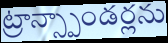
ట్రాన్స్పాండర్లను